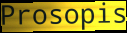
Prosopis